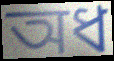
অধ